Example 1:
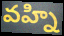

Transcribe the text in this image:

వహ్ని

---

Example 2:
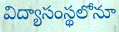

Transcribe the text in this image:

విద్యాసంస్థలోనూ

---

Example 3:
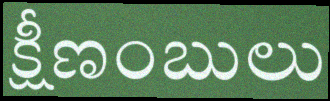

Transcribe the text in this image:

క్షీణంబులు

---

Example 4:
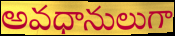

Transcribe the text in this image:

అవధానులుగా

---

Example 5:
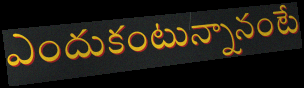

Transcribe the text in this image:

ఎందుకంటున్నానంటే